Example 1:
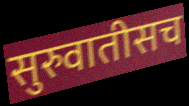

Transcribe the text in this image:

सुरुवातीसच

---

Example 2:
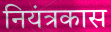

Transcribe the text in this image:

नियंत्रकास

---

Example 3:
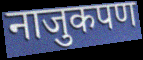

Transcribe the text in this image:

नाजुकपण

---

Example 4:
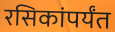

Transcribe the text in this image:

रसिकांपर्यंत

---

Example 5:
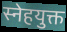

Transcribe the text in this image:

स्नेहयुक्त